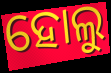
ହୋଲୁ